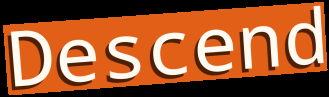
Descend